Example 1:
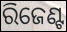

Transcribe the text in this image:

ରିଜେଣ୍ଟ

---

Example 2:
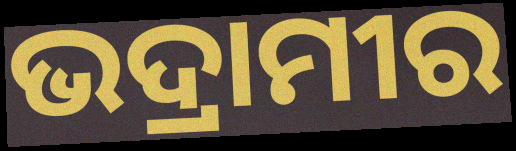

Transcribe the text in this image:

ଭଦ୍ରାମୀର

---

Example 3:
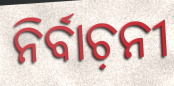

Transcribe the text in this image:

ନିର୍ବାଚ଼ନୀ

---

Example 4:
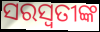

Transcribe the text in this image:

ସରସ୍ବତୀଙ୍କ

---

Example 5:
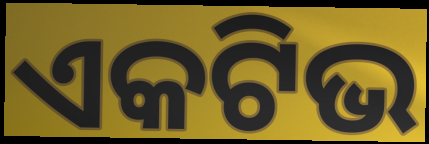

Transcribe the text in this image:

ଏକଟିଭ